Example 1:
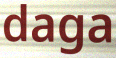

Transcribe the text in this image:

daga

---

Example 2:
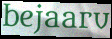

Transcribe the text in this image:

bejaaru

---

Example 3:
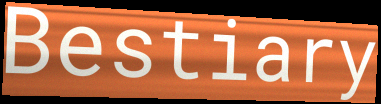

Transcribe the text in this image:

Bestiary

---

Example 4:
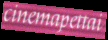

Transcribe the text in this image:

cinemapettai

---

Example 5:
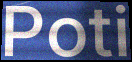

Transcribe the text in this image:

Poti